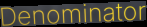
Denominator